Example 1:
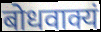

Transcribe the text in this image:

बोधवाक्यं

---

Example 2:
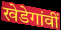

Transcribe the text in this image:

खेडेगांवीं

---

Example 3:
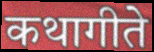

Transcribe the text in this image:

कथागीते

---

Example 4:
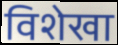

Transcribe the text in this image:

विशेखा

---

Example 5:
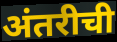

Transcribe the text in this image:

अंतरीची